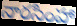
నారసింహా